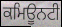
ਕਮਿਊਨਟੀ